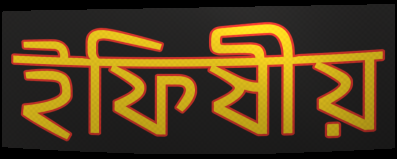
ইফিষীয়